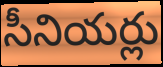
సీనియర్లు